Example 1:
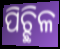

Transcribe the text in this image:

ପିଚ୍ଛିଳ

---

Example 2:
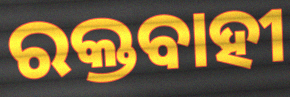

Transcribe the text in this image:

ରକ୍ତବାହୀ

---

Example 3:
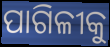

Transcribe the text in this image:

ପାଗିଳୀକୁ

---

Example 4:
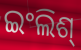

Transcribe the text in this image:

ଇଂଲିଶ୍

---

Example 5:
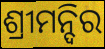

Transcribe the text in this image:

ଶ୍ରୀମନ୍ଦିର